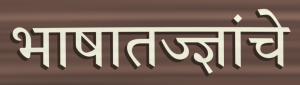
भाषातज्ज्ञांचे